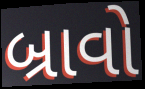
બ્રાવો